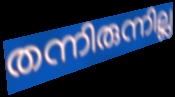
തന്നിരുന്നില്ല